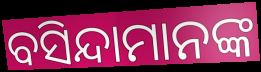
ବସିନ୍ଦାମାନଙ୍କ